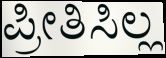
ಪ್ರೀತಿಸಿಲ್ಲ